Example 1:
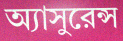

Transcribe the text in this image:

অ্যাসুরেন্স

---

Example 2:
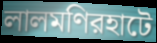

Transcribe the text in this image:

লালমণিরহাটে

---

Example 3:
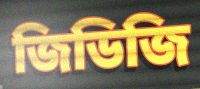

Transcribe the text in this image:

জিডিজি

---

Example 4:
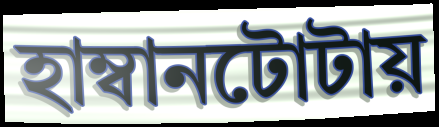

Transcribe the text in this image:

হাম্বানটোটায়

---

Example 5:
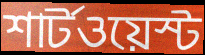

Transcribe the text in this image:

শার্টওয়েস্ট